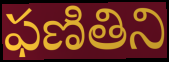
ఫణితిని